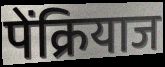
पेंक्रियाज